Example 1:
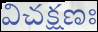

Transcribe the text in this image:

విచక్షణః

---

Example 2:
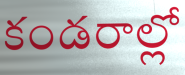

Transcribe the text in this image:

కండరాల్లో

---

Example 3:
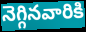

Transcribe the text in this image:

నెగ్గినవారికి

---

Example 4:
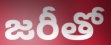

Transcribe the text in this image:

జరీతో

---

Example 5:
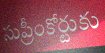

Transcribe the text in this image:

సుప్రీంకోర్టుకు